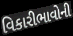
વિકારીભાવોની